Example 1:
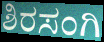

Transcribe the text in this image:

ಶಿರಸಂಗಿ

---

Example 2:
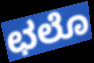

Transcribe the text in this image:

ಛಲೊ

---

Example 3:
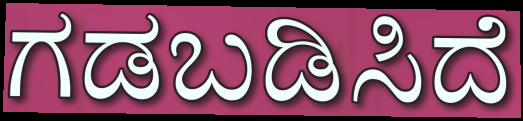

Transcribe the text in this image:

ಗಡಬಡಿಸಿದೆ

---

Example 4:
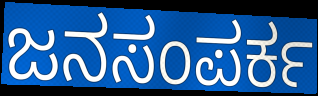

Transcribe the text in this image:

ಜನಸಂಪರ್ಕ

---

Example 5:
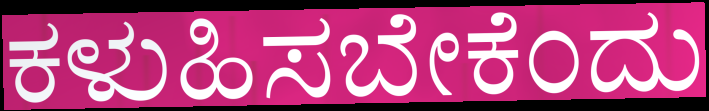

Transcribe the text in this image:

ಕಳುಹಿಸಬೇಕೆಂದು